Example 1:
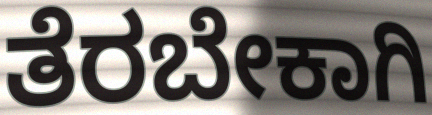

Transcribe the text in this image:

ತೆರಬೇಕಾಗಿ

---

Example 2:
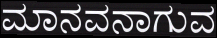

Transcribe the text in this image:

ಮಾನವನಾಗುವ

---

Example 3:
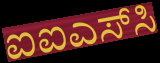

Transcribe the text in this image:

ಐಐಎಸ್‌ಸಿ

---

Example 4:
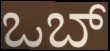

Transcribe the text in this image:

ಒಬ್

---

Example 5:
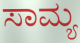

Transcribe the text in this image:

ಸಾಮ್ಯ